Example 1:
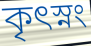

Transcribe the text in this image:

কৃৎস্নং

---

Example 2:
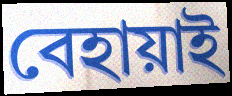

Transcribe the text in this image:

বেহায়াই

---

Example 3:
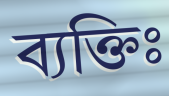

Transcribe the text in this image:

ব্যক্তিঃ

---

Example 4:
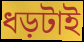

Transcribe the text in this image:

ধড়টাই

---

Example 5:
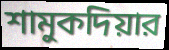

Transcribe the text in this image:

শামুকদিয়ার